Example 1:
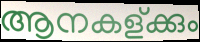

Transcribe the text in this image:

ആനകള്ക്കും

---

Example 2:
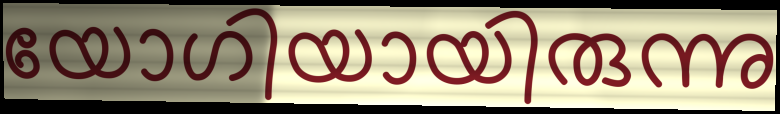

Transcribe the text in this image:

യോഗിയായിരുന്നു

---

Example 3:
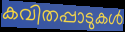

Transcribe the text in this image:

കവിതപ്പാടുകൾ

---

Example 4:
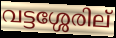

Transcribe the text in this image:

വട്ടശ്ശേരില്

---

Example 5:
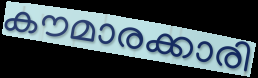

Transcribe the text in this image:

കൗമാരക്കാരി